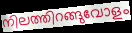
നിലത്തിറങ്ങുവോളം